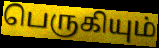
பெருகியும்